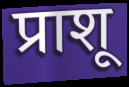
प्राशू